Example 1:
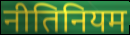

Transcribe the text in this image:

नीतिनियम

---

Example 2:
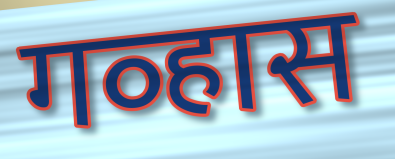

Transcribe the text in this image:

गव्हास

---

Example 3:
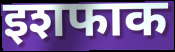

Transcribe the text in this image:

इशफाक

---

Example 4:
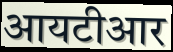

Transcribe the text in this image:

आयटीआर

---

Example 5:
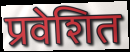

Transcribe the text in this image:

प्रवेशित